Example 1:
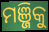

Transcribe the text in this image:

ମଞ୍ଜିକୁ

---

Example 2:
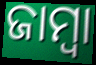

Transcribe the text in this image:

ଜାମ୍ବା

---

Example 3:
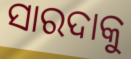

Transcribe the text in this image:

ସାରଦାକୁ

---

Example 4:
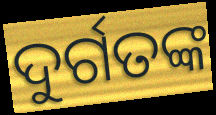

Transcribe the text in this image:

ଦୁର୍ଗତଙ୍କ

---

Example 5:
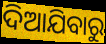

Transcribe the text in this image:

ଦିଆଯିବାରୁ